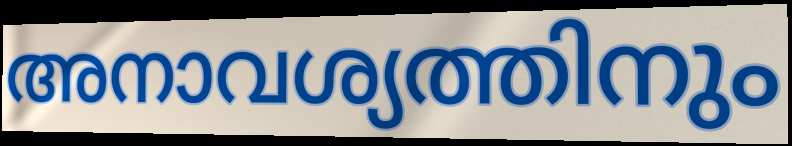
അനാവശ്യത്തിനും